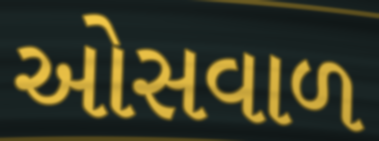
ઓસવાળ